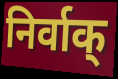
निर्वाक्